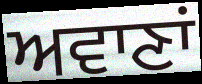
ਅਵਾਣਾਂ